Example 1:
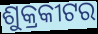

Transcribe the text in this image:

ଶୁକ୍ରକୀଟର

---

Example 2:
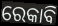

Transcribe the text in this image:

ରେକାବି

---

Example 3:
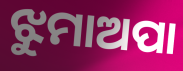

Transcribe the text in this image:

ଝୁମାଅପା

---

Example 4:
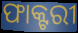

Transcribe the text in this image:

ଫାକ୍ଟରୀ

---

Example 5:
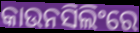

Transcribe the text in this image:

କାଉନସିଲିଂରେ